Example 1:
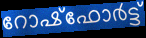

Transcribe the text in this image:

റോഷ്ഫോർട്ട്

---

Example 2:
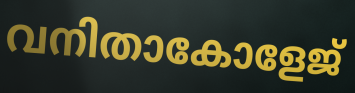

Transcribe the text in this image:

വനിതാകോളേജ്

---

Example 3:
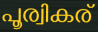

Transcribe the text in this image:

പൂര്വികര്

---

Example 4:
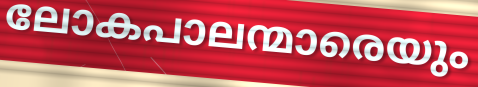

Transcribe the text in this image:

ലോകപാലന്മാരെയും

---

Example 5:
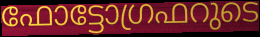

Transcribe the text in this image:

ഫോട്ടോഗ്രഫറുടെ